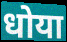
धोया